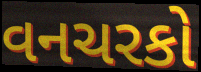
વનચરકો